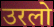
उरलो